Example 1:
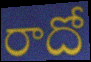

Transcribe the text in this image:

రాదో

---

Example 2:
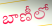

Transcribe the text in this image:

బాణీలో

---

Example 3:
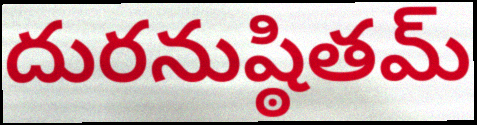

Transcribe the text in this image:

దురనుష్ఠితమ్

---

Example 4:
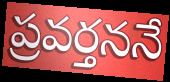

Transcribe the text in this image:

ప్రవర్తననే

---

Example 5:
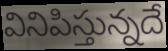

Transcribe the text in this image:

వినిపిస్తున్నదే